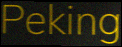
Peking